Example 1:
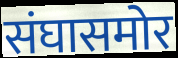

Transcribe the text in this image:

संघासमोर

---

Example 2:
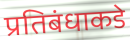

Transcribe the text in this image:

प्रतिबंधाकडे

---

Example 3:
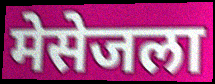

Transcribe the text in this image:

मेसेजला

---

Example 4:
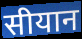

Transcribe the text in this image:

सीयान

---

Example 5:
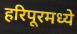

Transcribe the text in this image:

हरिपूरमध्ये